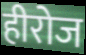
हीरोज